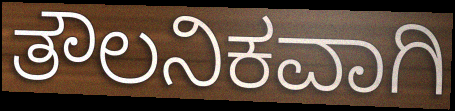
ತೌಲನಿಕವಾಗಿ